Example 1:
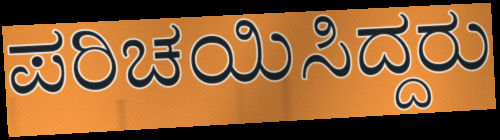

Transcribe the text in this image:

ಪರಿಚಯಿಸಿದ್ದರು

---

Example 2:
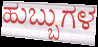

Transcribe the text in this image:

ಹುಬ್ಬುಗಳ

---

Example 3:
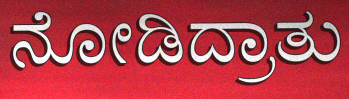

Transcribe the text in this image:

ನೋಡಿದ್ರಾತು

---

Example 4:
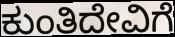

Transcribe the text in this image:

ಕುಂತಿದೇವಿಗೆ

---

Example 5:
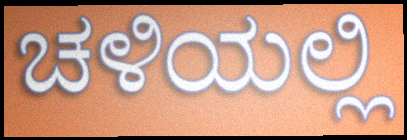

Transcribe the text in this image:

ಚಳಿಯಲ್ಲಿ